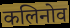
कलिनोव